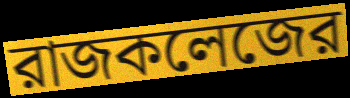
রাজকলেজের